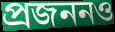
প্রজননও